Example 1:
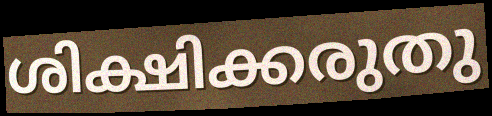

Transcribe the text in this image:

ശിക്ഷിക്കരുതു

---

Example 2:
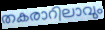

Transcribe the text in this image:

തകരാറിലാവും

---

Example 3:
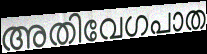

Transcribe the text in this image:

അതിവേഗപാത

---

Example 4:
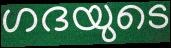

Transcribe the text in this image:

ഗദയുടെ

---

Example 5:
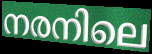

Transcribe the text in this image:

നരനിലെ